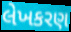
લેખકરણ